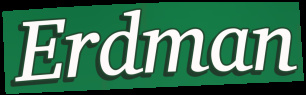
Erdman